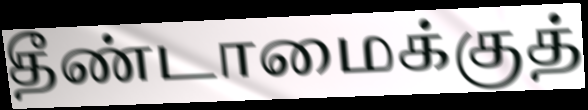
தீண்டாமைக்குத்